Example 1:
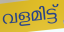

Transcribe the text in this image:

വളമിട്ട്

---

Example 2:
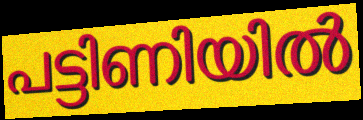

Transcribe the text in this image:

പട്ടിണിയിൽ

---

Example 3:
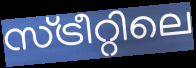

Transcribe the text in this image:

സ്ട്രീറ്റിലെ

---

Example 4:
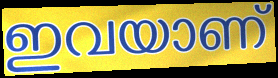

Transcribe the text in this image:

ഇവയാണ്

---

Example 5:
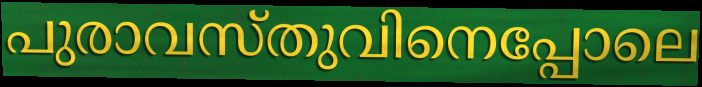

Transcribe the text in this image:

പുരാവസ്തുവിനെപ്പോലെ